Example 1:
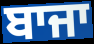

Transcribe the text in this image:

ਬਾਜਾ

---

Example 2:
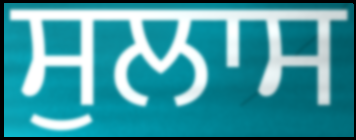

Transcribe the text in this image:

ਸੁਲਾਸ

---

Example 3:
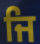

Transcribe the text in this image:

ਜਿ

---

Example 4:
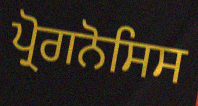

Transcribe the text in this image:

ਪ੍ਰੋਗਨੋਸਿਸ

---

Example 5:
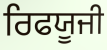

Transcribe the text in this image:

ਰਿਫਯੂਜੀ